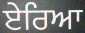
ਏਰਿਆ